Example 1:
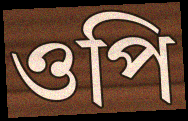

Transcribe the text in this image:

ওপি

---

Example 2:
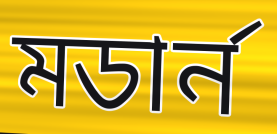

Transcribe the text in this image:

মডার্ন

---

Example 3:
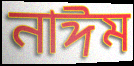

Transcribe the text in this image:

নাঈম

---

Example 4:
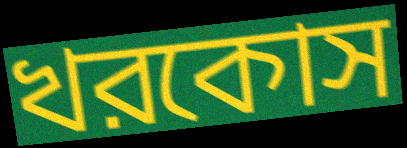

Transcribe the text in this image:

খরকোস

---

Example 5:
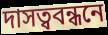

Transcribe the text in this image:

দাসত্ববন্ধনে